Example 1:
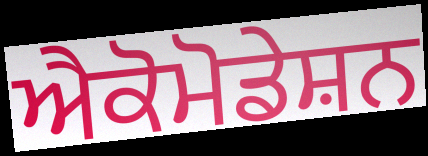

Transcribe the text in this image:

ਐਕੋਮੋਡੇਸ਼ਨ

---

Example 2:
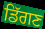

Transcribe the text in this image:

ਡਿੱਗਣ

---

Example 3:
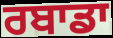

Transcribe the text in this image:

ਰਬਾਡਾ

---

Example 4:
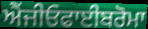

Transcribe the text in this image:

ਐਂਜੀਓਫਾਈਬਰੋਮਾ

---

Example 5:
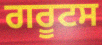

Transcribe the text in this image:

ਗਰੂਟਸ